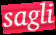
sagli